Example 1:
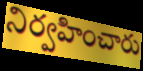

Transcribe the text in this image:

నిర్వహించారు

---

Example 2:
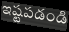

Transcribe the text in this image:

ఇష్టపడండి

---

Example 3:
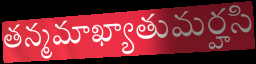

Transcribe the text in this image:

తన్మమాఖ్యాతుమర్హసి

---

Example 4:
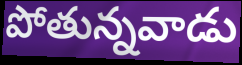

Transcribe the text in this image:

పోతున్నవాడు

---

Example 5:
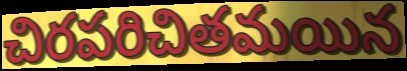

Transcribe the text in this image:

చిరపరిచితమయిన